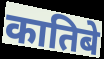
कातिबे